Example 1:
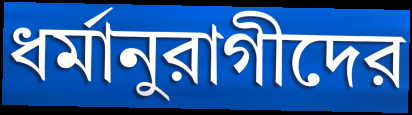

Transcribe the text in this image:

ধর্মানুরাগীদের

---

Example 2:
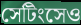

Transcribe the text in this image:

সেটিংসেও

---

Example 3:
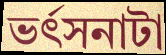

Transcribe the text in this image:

ভর্ৎসনাটা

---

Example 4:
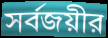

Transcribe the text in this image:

সর্বজয়ীর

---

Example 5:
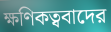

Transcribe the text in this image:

ক্ষণিকত্ববাদের